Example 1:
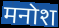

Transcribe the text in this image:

मनोश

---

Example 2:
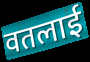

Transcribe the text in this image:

वतलाई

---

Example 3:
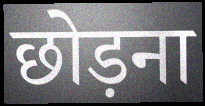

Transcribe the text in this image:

छोड़ना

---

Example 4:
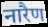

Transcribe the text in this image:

नारैण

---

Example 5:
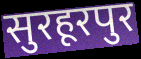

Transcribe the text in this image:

सुरहूरपुर